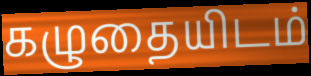
கழுதையிடம்